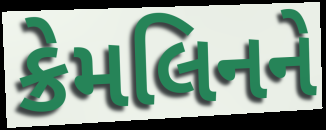
ક્રેમલિનને